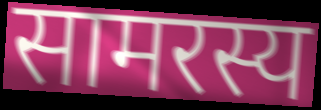
सामरस्य